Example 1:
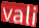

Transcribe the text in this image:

vali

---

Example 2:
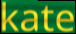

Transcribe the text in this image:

kate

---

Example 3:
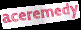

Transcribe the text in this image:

aceremedy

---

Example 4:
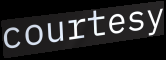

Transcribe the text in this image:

courtesy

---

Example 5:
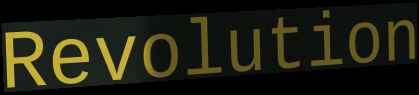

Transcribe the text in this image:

Revolution